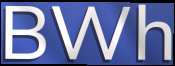
BWh